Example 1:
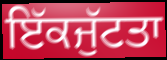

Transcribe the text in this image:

ਇੱਕਜੁੱਟਤਾ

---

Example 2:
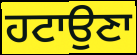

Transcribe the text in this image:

ਹਟਾਉਣਾ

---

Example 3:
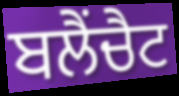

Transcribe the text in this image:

ਬਲੈਂਚੈਟ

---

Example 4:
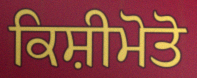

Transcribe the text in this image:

ਕਿਸ਼ੀਮੋਤੋ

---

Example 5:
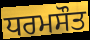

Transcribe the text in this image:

ਧਰਮਸੌਤ